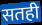
सतही